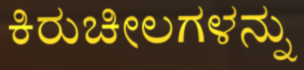
ಕಿರುಚೀಲಗಳನ್ನು